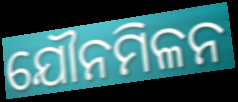
ଯୌନମିଳନ